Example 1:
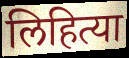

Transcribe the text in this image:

लिहित्या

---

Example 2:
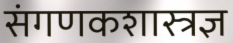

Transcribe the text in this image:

संगणकशास्त्रज्ञ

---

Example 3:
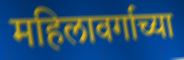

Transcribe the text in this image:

महिलावर्गाच्या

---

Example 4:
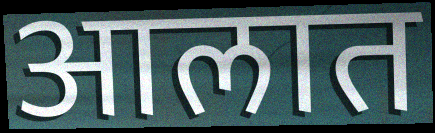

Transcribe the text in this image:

आलात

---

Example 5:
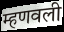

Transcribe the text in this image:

म्हणवली